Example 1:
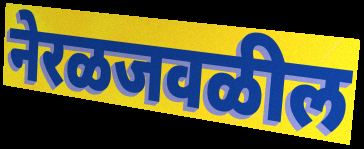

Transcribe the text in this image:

नेरळजवळील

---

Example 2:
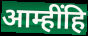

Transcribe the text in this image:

आम्हींहि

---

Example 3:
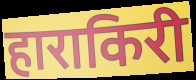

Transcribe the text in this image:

हाराकिरी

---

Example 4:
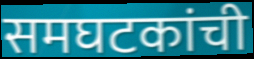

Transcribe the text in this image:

समघटकांची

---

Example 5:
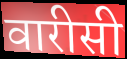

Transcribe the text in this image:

वारीसी